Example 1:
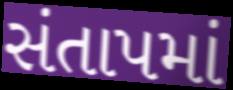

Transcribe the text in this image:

સંતાપમાં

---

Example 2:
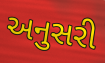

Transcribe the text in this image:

અનુસરી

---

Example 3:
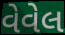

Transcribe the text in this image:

વેવેલ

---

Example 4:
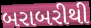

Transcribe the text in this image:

બરાબરીથી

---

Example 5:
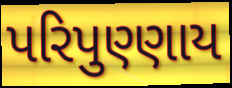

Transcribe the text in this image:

પરિપુણ્ણાય